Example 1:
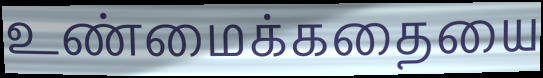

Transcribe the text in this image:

உண்மைக்கதையை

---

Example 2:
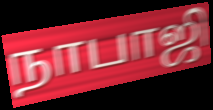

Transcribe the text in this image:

நாபாஜி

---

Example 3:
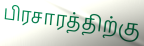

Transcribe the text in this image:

பிரசாரத்திற்கு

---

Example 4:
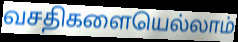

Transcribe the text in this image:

வசதிகளையெல்லாம்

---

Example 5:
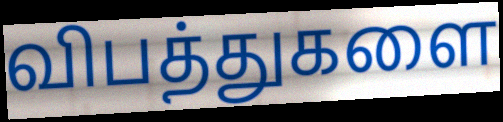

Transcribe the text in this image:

விபத்துகளை